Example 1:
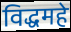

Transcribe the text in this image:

विद्धमहे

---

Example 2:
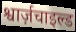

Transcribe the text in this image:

श्वार्ज़चाइल्ड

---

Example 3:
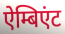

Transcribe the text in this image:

ऐम्बिएंट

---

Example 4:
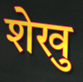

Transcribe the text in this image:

शेखु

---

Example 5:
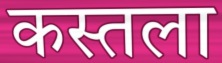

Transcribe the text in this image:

कस्तला